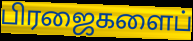
பிரஜைகளைப்